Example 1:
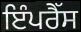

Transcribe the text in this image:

ਇੰਪਰੈੱਸ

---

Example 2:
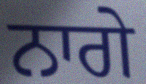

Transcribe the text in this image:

ਨਾਗੇ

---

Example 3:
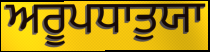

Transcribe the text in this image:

ਅਰੂਪਧਾਤੁਯਾ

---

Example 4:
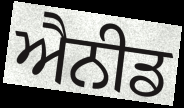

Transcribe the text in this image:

ਐਨੀਡ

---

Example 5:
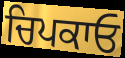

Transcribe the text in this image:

ਚਿਪਕਾਓ